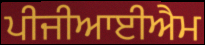
ਪੀਜੀਆਈਐਮ